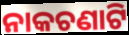
ନାକଚଣାଟି